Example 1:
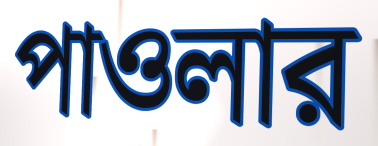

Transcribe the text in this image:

পাওলার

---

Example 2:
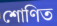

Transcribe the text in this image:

শোণিত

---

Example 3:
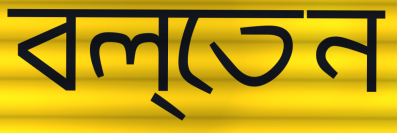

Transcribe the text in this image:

বল্‌তেন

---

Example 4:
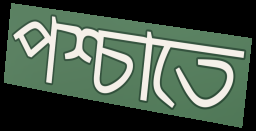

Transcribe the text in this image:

পশ্চাতে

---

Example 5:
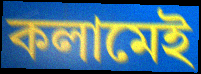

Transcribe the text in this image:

কলামেই